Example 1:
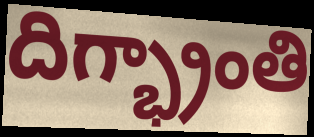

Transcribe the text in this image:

దిగ్భ్రాంతి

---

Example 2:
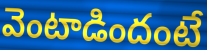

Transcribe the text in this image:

వెంటాడిందంటే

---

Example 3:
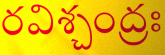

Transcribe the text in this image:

రవిశ్చంద్రః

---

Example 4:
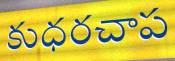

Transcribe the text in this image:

కుధరచాప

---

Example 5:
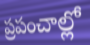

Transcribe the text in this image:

ప్రపంచాల్లో